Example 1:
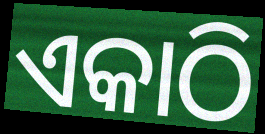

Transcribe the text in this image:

ଏକାଠି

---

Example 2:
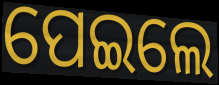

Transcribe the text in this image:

ପେଇଲେ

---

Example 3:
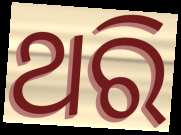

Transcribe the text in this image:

ଥରି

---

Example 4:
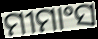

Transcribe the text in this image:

ମୀମାଂସ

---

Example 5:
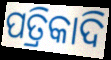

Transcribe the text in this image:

ପତ୍ରିକାଦି